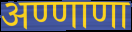
अण्णाणा